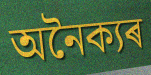
অনৈক্যৰ